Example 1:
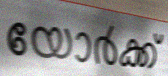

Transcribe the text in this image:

യോർക്ക്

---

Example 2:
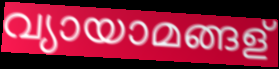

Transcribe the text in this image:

വ്യായാമങ്ങള്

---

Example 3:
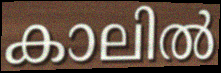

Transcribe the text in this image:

കാലിൽ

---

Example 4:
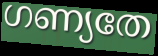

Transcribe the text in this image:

ഗണ്യതേ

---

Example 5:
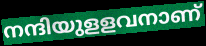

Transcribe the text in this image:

നന്ദിയുളളവനാണ്